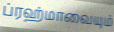
ப்ரஹ்மாவையும்